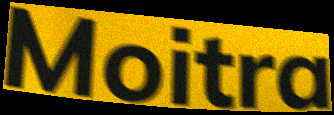
Moitra